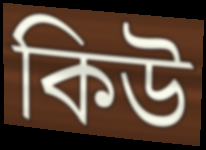
কিউ